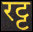
रट्ट